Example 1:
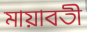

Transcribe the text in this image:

মায়াবতী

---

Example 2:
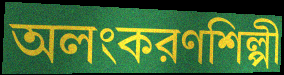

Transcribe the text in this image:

অলংকরণশিল্পী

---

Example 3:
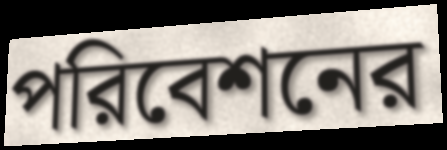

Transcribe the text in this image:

পরিবেশনের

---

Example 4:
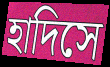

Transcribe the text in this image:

হাদিসে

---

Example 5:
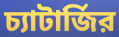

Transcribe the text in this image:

চ্যাটার্জির